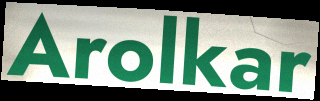
Arolkar